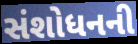
સંશોધનની